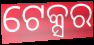
ଟେକ୍ସର